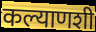
कल्याणशी